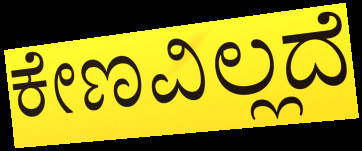
ಕೇಣವಿಲ್ಲದೆ